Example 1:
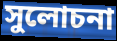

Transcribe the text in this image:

সুলোচনা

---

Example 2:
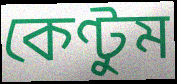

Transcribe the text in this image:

কেণ্টুম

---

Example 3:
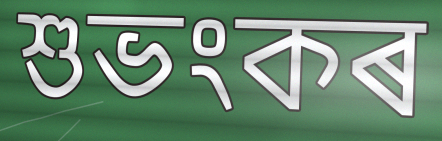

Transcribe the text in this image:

শুভংকৰ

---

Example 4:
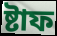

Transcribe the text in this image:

ষ্টাফ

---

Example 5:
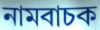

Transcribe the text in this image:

নামবাচক